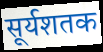
सूर्यशतक